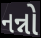
નન્નો